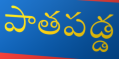
పాతపడ్డ